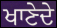
ਖਾਣੇਦੇ